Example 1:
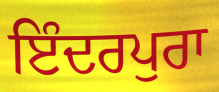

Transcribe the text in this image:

ਇੰਦਰਪੁਰਾ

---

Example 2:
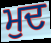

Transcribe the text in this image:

ਮੁਦ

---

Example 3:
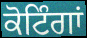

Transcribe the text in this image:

ਕੋਟਿੰਗਾਂ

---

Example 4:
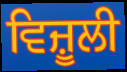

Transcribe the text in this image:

ਵਿਜ਼ੂਲੀ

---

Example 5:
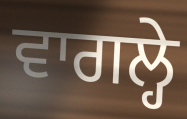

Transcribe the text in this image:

ਵਾਗਲ੍ਹੇ